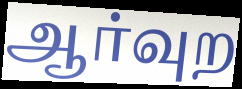
ஆர்வுற